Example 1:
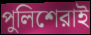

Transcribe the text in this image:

পুলিশেরাই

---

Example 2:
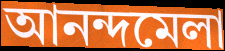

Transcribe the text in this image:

আনন্দমেলা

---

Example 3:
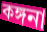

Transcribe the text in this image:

কঙ্গনা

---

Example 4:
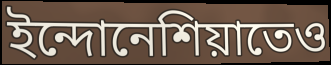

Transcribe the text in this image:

ইন্দোনেশিয়াতেও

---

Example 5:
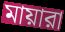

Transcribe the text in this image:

মায়ারা